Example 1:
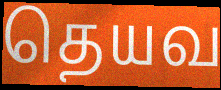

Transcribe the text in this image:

தெயவ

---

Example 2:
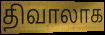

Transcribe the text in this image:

திவாலாக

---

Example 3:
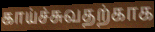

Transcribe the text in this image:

காய்ச்சுவதற்காக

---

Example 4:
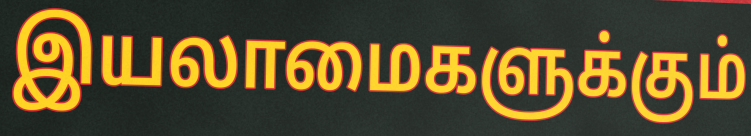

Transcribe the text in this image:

இயலாமைகளுக்கும்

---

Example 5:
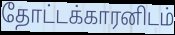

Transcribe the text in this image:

தோட்டக்காரனிடம்